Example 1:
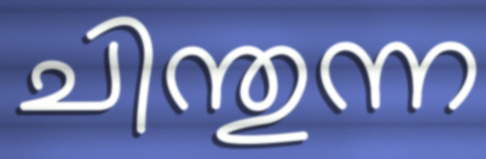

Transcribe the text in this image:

ചിന്തുന്ന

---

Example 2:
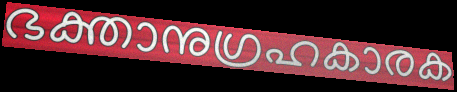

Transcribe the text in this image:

ഭക്താനുഗ്രഹകാരക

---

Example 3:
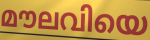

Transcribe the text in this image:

മൗലവിയെ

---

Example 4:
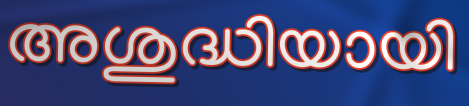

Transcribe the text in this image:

അശുദ്ധിയായി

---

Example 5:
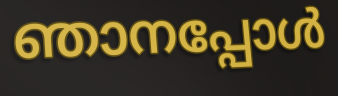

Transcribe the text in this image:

ഞാനപ്പോൾ